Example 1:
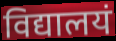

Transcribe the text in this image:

विद्यालयं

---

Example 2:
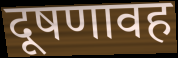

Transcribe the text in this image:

दूषणावह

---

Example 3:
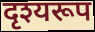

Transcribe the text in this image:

दृश्यरूप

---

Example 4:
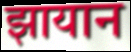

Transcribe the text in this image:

झायान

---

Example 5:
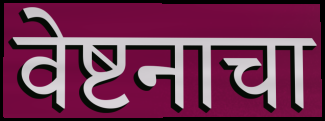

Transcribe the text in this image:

वेष्टनाचा